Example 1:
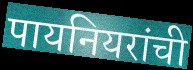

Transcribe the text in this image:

पायनियरांची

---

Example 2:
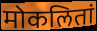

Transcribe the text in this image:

मोकलितां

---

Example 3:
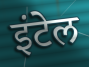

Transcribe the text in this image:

इंटेल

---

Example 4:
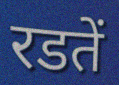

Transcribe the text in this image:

रडतें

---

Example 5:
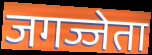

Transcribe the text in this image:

जगज्जेता